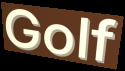
Golf